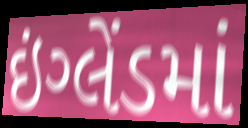
ઇંગ્લેંડમાં